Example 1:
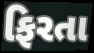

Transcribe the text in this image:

ફિરતા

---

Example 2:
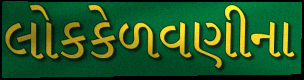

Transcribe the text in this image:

લોકકેળવણીના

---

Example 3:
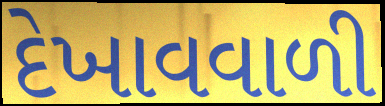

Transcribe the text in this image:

દેખાવવાળી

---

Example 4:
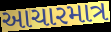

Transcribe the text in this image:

આચારમાત્ર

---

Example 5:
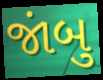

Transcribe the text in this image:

જાંબુ